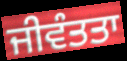
ਜੀਵੰਤਤਾ